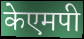
केएमपी